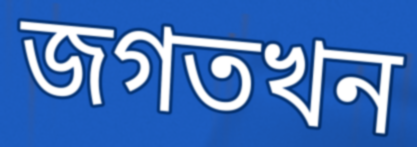
জগতখন